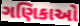
ગણિકાઓ